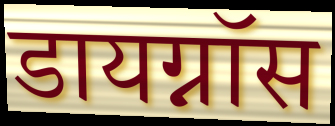
डायग्नॉस